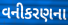
વનીકરણના